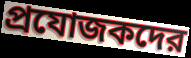
প্রযোজকদের